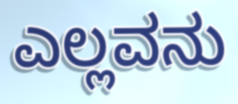
ಎಲ್ಲವನು